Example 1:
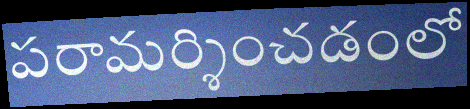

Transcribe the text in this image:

పరామర్శించడంలో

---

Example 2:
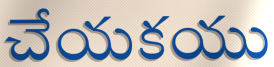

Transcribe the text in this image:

చేయకయు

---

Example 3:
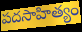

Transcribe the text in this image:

పదసాహిత్యం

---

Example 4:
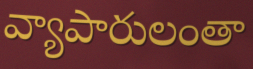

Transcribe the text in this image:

వ్యాపారులంతా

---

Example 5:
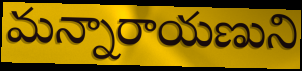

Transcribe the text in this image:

మన్నారాయణుని